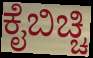
ಕೈಬಿಚ್ಚಿ